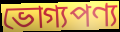
ভোগ্যপণ্য